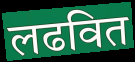
लढवित